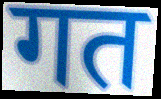
गत